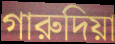
গারুদিয়া